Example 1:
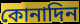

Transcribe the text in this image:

কোনাদিন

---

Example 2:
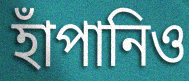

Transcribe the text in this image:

হাঁপানিও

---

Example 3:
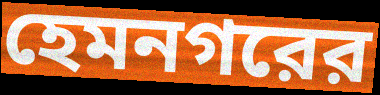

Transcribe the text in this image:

হেমনগরের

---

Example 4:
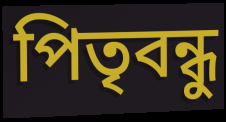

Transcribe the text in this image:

পিতৃবন্ধু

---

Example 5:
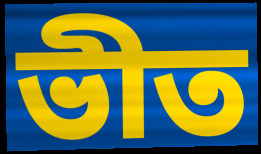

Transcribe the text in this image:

ভীত